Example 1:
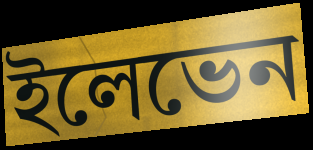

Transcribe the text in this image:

ইলেভেন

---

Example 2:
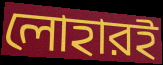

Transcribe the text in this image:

লোহারই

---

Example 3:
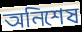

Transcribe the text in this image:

অনিশেষ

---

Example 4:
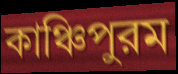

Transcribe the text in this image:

কাঞ্চিপুরম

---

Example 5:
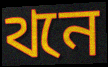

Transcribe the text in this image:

থনে